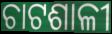
ଚାଟଶାଳୀ